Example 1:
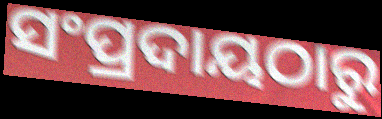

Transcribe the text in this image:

ସଂପ୍ରଦାୟଠାରୁ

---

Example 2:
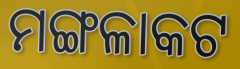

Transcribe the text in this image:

ମଙ୍ଗଳାକଟ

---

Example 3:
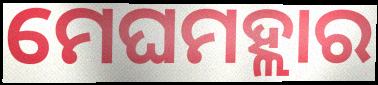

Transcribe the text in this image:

ମେଘମହ୍ଲାର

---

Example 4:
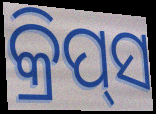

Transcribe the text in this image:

କ୍ରିପ୍‍ସ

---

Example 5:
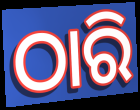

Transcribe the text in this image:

ଠାରି